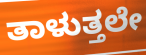
ತಾಳುತ್ತಲೇ